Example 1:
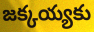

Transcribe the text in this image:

జక్కయ్యకు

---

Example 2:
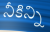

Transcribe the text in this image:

నీకిన్ని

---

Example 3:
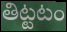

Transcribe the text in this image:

తిట్టటం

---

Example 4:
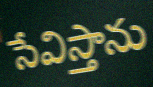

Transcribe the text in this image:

సేవిస్తాను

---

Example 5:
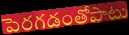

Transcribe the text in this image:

పెరగడంతోపాటు